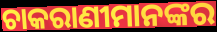
ଚାକରାଣୀମାନଙ୍କର